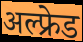
अल्फ्रेड